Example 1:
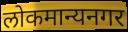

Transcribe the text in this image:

लोकमान्यनगर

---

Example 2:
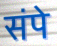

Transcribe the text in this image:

संपे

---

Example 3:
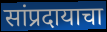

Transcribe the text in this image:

सांप्रदायाचा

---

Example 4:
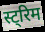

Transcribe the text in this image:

स्ट्रिम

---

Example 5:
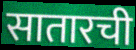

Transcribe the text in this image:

सातारची